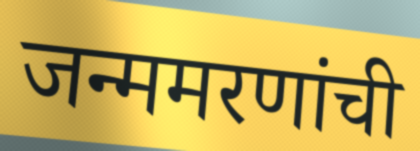
जन्ममरणांची